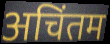
अचिंतम